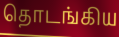
தொடங்கிய